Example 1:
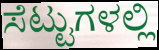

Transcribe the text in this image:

ಸೆಟ್ಟುಗಳಲ್ಲಿ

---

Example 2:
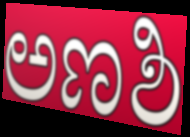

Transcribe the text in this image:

ಅಣಶಿ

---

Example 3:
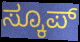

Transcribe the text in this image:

ಸ್ಕೂಪ್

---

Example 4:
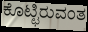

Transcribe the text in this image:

ಕೊಟ್ಟಿರುವಂತ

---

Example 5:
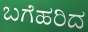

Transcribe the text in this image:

ಬಗೆಹರಿದ